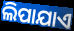
ଲିପାଯାଏ